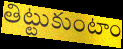
తిట్టుకుంటాం